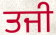
ਤਜੀ